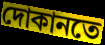
দোকানতে